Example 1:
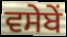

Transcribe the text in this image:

ਵਸੇਬੇਂ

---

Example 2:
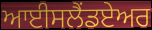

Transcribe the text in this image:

ਆਈਸਲੈਂਡਏਅਰ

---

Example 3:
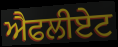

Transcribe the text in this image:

ਐਫਲੀਏਟ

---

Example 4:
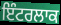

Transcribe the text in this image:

ਇੰਟਰਲਾਕ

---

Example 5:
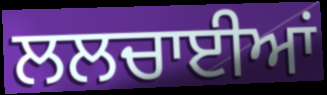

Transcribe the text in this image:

ਲਲਚਾਈਆਂ